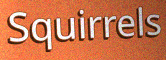
Squirrels